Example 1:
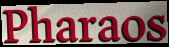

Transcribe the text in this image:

Pharaos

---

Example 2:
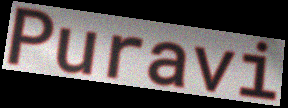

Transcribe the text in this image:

Puravi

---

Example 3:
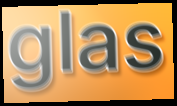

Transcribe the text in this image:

glas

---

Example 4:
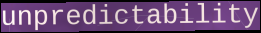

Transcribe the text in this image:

unpredictability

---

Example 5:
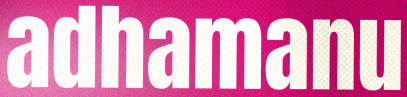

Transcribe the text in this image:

adhamanu